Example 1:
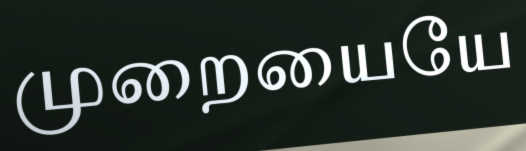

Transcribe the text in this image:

முறையையே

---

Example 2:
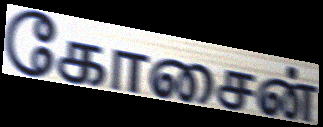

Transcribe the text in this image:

கோசைன்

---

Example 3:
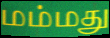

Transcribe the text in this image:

மம்மது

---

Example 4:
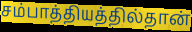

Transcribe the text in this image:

சம்பாத்தியத்தில்தான்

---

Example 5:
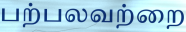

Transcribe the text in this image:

பற்பலவற்றை